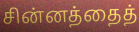
சின்னத்தைத்